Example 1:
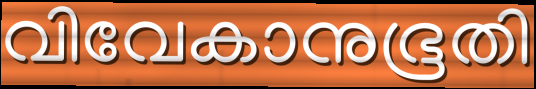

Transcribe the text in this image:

വിവേകാനുഭൂതി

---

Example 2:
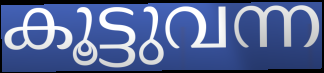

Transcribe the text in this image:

കൂട്ടുവന്ന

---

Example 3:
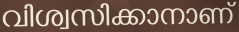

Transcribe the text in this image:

വിശ്വസിക്കാനാണ്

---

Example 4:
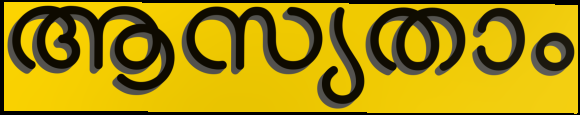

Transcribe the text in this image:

ആസ്യതാം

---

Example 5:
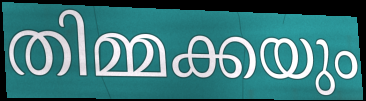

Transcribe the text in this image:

തിമ്മക്കയും